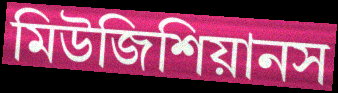
মিউজিশিয়ানস